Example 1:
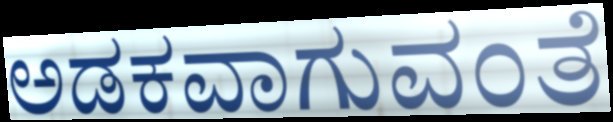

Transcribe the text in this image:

ಅಡಕವಾಗುವಂತೆ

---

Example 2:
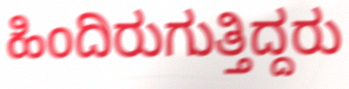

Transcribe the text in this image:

ಹಿಂದಿರುಗುತ್ತಿದ್ದರು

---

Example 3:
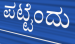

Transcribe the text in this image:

ಪಟ್ಟೆಂದು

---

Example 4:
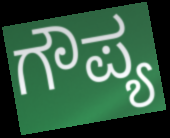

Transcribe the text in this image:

ಗೌಪ್ಯ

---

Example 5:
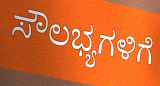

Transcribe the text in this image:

ಸೌಲಭ್ಯಗಳಿಗೆ